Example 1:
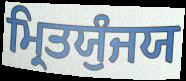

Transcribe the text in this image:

ਮ੍ਰਿਤਯੁੰਜਯ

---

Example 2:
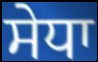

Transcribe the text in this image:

ਸੇਧਾ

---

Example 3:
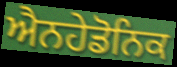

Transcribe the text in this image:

ਐਨਹੇਡੋਨਿਕ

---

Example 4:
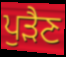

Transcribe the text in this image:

ਪੁੜੈਣ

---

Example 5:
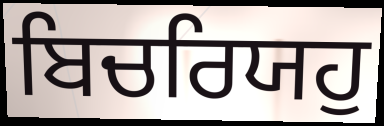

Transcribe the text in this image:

ਬਿਚਰਿਯਹੁ